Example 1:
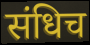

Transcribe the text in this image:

संधिच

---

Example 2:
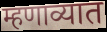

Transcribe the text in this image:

म्हणाव्यात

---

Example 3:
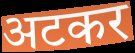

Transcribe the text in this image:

अटकर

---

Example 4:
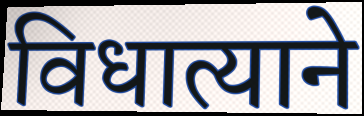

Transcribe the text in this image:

विधात्याने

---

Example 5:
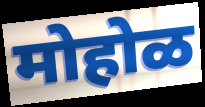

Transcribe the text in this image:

मोहोळ